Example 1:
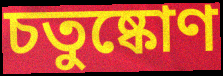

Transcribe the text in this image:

চতুষ্কোণ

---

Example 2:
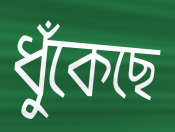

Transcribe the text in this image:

ধুঁকেছে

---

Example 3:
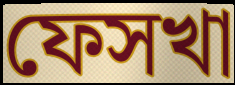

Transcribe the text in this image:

ফেসখা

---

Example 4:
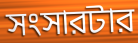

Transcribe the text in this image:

সংসারটার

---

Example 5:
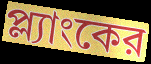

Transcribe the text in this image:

প্ল্যাংকের